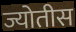
ज्योतीस